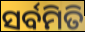
ସର୍ବମିତି